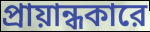
প্রায়ান্ধকারে